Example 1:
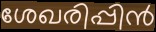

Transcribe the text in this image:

ശേഖരിപ്പിൻ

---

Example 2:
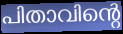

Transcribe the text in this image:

പിതാവിന്റെ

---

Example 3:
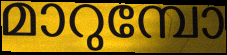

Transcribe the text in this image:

മാറുമ്പോ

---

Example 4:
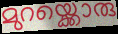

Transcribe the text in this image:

മുറയ്ക്കൊരു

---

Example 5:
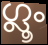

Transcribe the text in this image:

ഗ്ലൂം